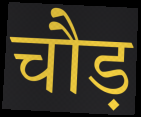
चौड़